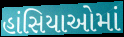
હાંસિયાઓમાં